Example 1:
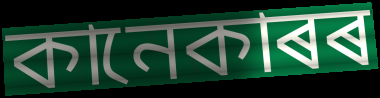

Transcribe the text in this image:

কানেকাৰৰ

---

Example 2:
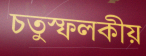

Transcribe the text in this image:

চতুস্ফলকীয়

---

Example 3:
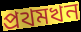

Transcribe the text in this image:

প্ৰথমখন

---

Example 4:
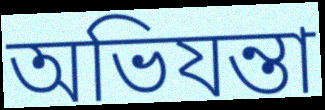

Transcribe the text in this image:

অভিযন্তা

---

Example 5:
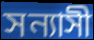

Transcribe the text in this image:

সন্যাসী